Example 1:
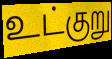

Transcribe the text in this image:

உட்குறு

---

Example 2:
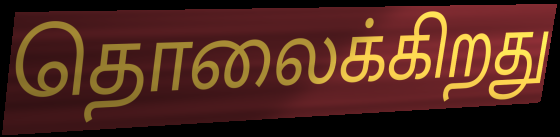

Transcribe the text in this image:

தொலைக்கிறது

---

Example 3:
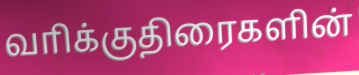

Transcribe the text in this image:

வரிக்குதிரைகளின்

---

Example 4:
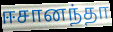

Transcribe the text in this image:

ஈசானந்தா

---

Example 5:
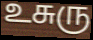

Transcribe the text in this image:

உசுரு